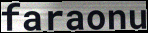
faraonu